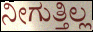
ನೀಗುತ್ತಿಲ್ಲ